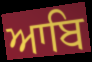
ਆਬਿ